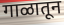
गाळातून